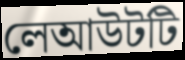
লেআউটটি